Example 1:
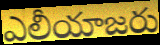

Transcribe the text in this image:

ఎలీయాజరు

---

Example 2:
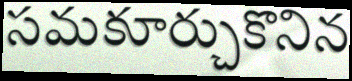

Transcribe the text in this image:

సమకూర్చుకొనిన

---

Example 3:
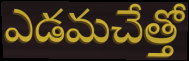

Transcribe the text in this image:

ఎడమచేత్తో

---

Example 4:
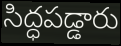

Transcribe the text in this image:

సిద్ధపడ్డారు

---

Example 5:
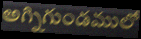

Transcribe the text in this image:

అగ్నిగుండములో